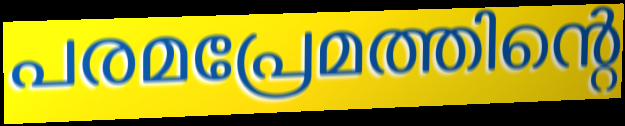
പരമപ്രേമത്തിന്റെ